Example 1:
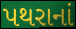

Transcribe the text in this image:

પથરાનાં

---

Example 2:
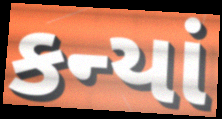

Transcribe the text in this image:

કન્યાં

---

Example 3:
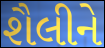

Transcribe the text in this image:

શૈલીને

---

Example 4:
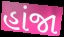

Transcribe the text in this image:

હાંજા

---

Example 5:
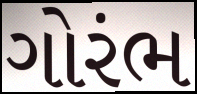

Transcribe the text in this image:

ગોરંભ